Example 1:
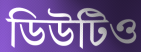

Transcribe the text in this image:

ডিউটিও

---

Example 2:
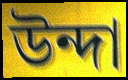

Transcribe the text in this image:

উন্দা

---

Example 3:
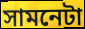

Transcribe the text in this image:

সামনেটা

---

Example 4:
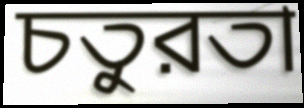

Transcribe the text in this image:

চতুরতা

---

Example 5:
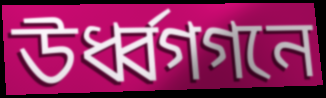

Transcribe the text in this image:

উর্ধ্বগগনে